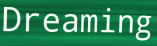
Dreaming